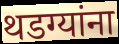
थडग्यांना